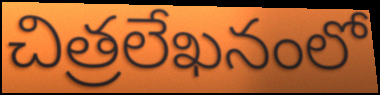
చిత్రలేఖనంలో